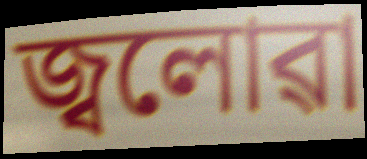
জ্বলোৱা